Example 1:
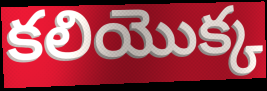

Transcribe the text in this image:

కలియొక్క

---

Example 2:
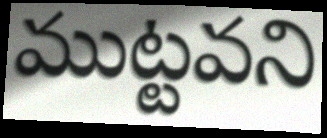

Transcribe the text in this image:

ముట్టవని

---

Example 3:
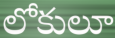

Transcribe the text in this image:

లోకులూ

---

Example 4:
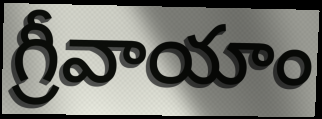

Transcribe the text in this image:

గ్రీవాయాం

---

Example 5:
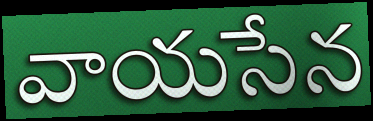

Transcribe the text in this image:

వాయసేన